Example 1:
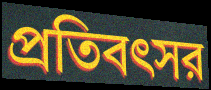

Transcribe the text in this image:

প্রতিবৎসর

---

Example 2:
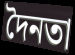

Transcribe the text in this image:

দৈনতা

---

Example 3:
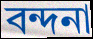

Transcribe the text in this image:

বন্দনা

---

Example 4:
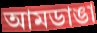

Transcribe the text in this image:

আমডাঙা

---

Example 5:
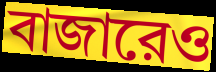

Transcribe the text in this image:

বাজারেও